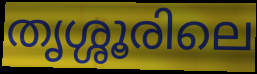
തൃശ്ശൂരിലെ